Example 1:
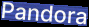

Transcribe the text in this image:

Pandora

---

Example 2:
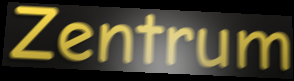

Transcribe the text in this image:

Zentrum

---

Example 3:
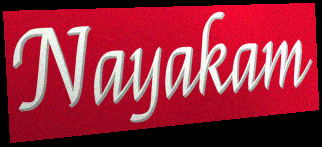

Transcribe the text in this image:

Nayakam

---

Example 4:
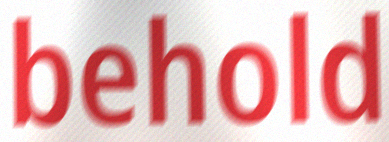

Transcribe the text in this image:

behold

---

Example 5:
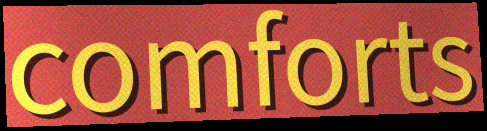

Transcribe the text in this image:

comforts